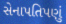
સેનાપતિપણું